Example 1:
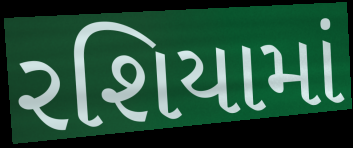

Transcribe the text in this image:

રશિયામાં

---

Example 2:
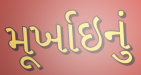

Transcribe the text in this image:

મૂર્ખાઇનું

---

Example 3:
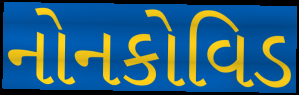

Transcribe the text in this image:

નોનકોવિડ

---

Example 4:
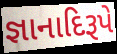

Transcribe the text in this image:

જ્ઞાનાદિરૂપે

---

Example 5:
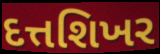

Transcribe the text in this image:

દત્તશિખર